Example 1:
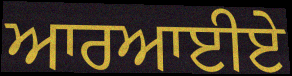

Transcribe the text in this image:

ਆਰਆਈਏ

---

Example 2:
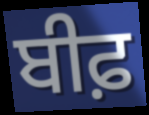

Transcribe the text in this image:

ਬੀਫ਼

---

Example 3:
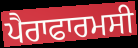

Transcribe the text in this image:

ਪੈਰਾਫਾਰਮਸੀ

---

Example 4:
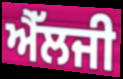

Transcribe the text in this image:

ਐੱਲਜੀ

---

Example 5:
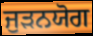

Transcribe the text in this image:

ਜੁੜਨਯੋਗ